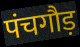
पंचगौड़